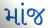
માંજ